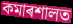
কমাৰশালত